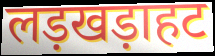
लड़खड़ाहट